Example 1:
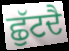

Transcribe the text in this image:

ਛੁੱਟਦੈ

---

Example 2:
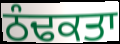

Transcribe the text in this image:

ਠੰਢਕਤਾ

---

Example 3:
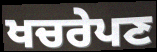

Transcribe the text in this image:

ਖਚਰੇਪਣ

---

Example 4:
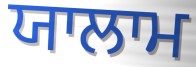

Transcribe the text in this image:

ਯਾਲਾਮ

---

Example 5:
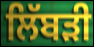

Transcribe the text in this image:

ਲਿੱਬੜੀ